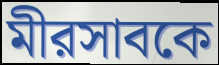
মীরসাবকে